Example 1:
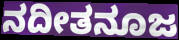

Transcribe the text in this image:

ನದೀತನೂಜ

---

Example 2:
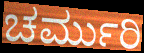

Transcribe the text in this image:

ಚರ್ಮುರಿ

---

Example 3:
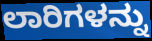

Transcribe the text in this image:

ಲಾರಿಗಳನ್ನು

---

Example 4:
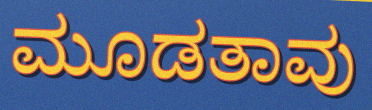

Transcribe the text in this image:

ಮೂಡತಾವು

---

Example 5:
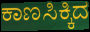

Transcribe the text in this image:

ಕಾಣಸಿಕ್ಕಿದ